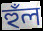
হুঁল